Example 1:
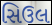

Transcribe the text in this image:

સિઉલ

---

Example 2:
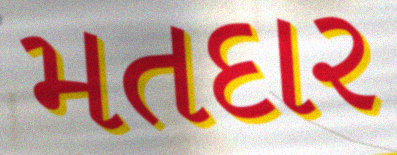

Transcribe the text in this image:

મતદાર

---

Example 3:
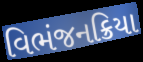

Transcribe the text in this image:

વિભંજનક્રિયા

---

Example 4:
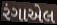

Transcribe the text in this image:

રંગાએલ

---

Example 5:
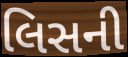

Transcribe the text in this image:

લિસની